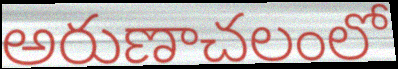
అరుణాచలంలో